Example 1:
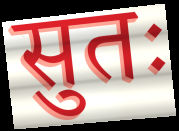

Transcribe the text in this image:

सुतः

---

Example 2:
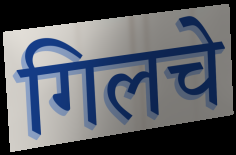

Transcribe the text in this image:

गिलचे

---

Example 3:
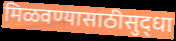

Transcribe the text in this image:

मिळवण्यासाठीसुद्धा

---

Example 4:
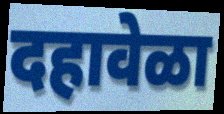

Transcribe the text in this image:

दहावेळा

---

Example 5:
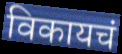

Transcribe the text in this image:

विकायचं